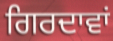
ਗਿਰਦਾਵਾਂ